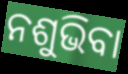
ନଶୁଭିବା